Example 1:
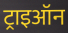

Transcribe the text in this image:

ट्राइऑन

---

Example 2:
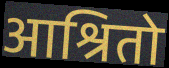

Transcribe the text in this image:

आश्रितो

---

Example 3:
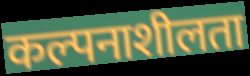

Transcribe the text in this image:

कल्पनाशीलता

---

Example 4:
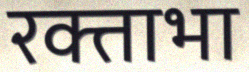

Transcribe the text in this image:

रक्ताभा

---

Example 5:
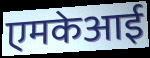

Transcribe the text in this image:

एमकेआई